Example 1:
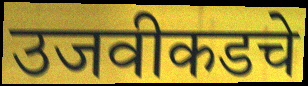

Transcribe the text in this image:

उजवीकडचे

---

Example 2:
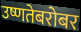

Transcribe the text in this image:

उष्णतेबरोबर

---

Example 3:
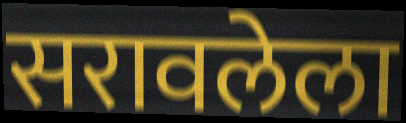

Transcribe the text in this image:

सरावलेला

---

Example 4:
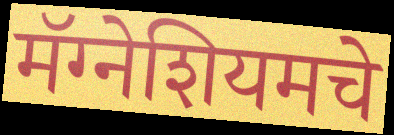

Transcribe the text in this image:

मॅग्नेशियमचे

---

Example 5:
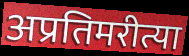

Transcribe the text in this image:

अप्रतिमरीत्या